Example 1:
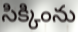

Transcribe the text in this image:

సిక్కింను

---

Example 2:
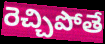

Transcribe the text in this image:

రెచ్చిపోతే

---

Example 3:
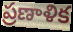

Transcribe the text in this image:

ప్రణాళిక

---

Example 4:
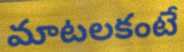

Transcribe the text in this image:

మాటలకంటే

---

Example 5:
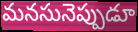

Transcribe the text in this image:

మనసునెప్పుడూ